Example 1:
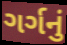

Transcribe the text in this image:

ગર્ગનું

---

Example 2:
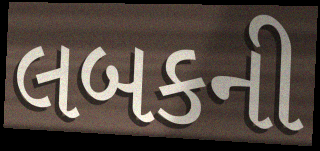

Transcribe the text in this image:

લબકની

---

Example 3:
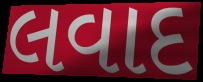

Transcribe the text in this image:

લવાદ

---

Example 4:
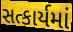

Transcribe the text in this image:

સત્કાર્યમાં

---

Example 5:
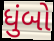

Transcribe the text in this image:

ધુંબો